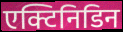
एक्टिनिडिन